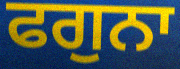
ਫਗੁਨਾ